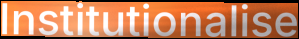
Institutionalise